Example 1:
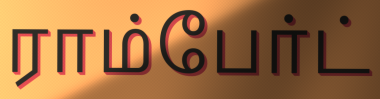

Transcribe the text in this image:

ராம்பேர்ட்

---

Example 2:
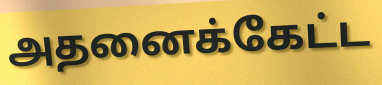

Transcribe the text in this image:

அதனைக்கேட்ட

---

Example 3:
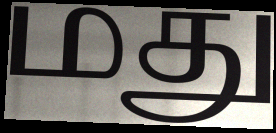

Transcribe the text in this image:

மது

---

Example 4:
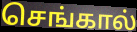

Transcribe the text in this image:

செங்கால்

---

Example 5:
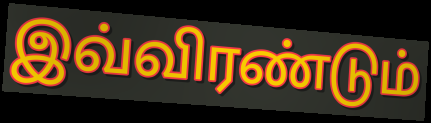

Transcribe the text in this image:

இவ்விரண்டும்